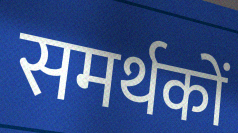
समर्थकों